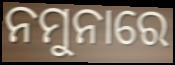
ନମୁନାରେ